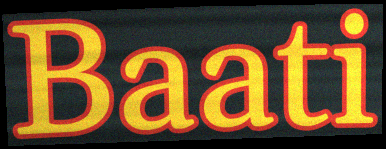
Baati